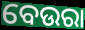
ବେଉରା